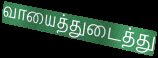
வாயைத்துடைத்து